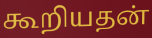
கூறியதன்